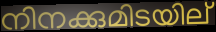
നിനക്കുമിടയില്